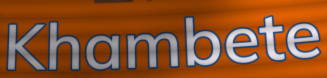
Khambete